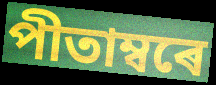
পীতাম্বৰে